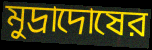
মুদ্রাদোষের